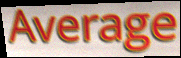
Average